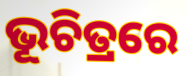
ଭୂଚିତ୍ରରେ